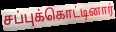
சப்புக்கொட்டினார்